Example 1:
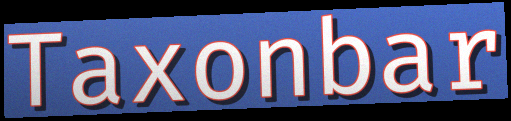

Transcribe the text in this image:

Taxonbar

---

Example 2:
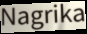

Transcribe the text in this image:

Nagrika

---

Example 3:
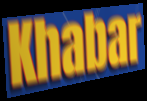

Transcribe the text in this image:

Khabar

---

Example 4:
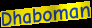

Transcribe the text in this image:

Dhaboman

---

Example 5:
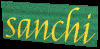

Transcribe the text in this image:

sanchi